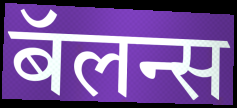
बॅलन्स